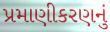
પ્રમાણીકરણનું